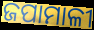
ଜପାମାଳୀ